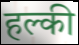
हल्‍की